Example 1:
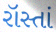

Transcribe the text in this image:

રૉસ્તાં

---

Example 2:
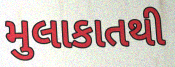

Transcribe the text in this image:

મુલાકાતથી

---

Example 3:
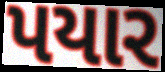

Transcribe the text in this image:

પયાર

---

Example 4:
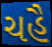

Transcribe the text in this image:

ચહૈ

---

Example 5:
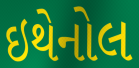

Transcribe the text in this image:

ઇથેનોલ